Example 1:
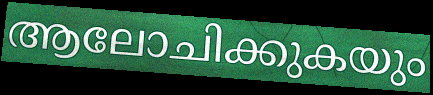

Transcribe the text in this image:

ആലോചിക്കുകയും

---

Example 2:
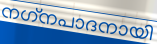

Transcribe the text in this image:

നഗ്‌നപാദനായി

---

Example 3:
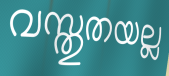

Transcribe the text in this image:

വസ്തുതയല്ല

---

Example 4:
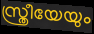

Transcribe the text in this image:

സ്ത്രീയേയും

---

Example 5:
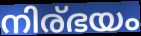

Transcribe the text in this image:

നിര്ഭയം